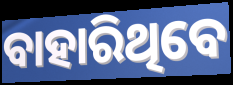
ବାହାରିଥିବେ